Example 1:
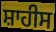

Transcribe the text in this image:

ਸ਼ਾਹੀਸ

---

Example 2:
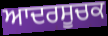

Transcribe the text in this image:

ਆਦਰਸੂਚਕ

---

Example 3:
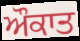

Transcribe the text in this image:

ਔਕਾਤ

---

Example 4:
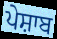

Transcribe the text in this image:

ਪੇਸ਼ਾਬ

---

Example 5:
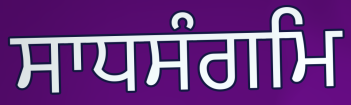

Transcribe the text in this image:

ਸਾਧਸੰਗਮਿ